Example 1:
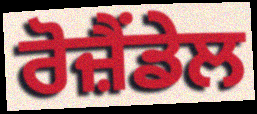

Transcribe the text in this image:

ਰੋਜ਼ੈਂਡੇਲ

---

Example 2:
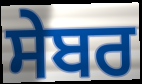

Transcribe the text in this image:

ਸੇਬਰ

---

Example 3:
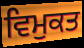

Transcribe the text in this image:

ਵਿਮੁਕਤ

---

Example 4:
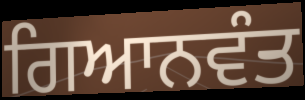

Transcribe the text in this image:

ਗਿਆਨਵੰਤ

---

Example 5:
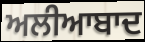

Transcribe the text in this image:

ਅਲੀਆਬਾਦ